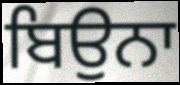
ਬਿਉਨਾ